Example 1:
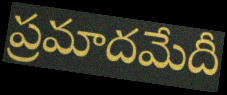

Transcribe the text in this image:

ప్రమాదమేదీ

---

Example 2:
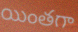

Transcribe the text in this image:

యింతగా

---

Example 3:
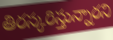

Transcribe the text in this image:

తిరస్కరిస్తున్నారని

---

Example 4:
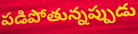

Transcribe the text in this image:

పడిపోతున్నప్పుడు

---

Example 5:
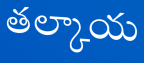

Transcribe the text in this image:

తల్కాయ